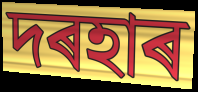
দৰহাৰ